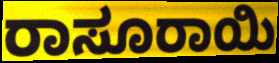
ರಾಸೂರಾಯಿ